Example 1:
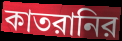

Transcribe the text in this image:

কাতরানির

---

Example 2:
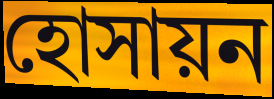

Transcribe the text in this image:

হোসায়ন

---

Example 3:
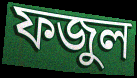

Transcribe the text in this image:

ফজুল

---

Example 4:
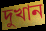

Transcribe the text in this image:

দুখান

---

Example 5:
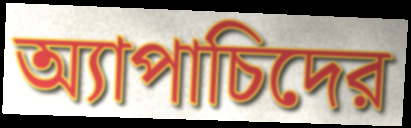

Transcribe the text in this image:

অ্যাপাচিদের